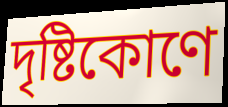
দৃষ্টিকোণে